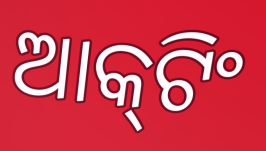
ଆକ୍‌ଟିଂ